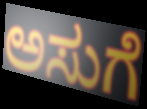
ಅಸುಗೆ